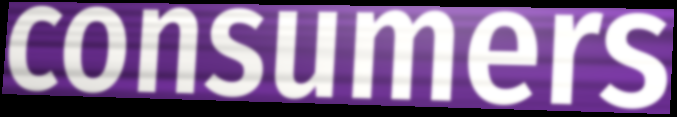
consumers